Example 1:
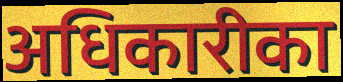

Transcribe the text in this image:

अधिकारीका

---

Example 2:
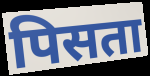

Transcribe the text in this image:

पिसता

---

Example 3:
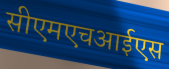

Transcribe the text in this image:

सीएमएचआईएस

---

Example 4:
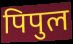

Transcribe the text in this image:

पिपुल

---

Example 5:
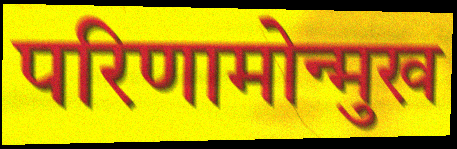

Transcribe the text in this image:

परिणामोन्मुख